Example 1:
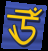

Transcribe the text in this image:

ঊঁ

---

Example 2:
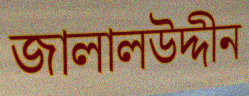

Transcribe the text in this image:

জালালউদ্দীন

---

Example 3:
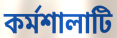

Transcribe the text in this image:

কর্মশালাটি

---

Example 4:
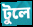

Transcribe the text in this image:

টুলে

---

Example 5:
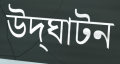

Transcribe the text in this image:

উদ্‌ঘাটন